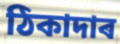
ঠিকাদাৰ